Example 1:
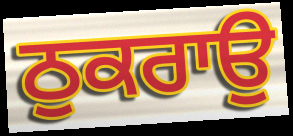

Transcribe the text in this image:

ਠੁਕਰਾਉ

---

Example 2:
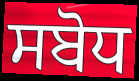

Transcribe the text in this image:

ਸਬੋਧ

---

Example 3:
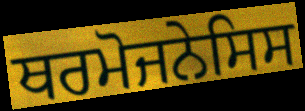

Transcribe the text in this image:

ਥਰਮੋਜਨੇਸਿਸ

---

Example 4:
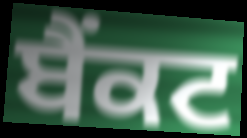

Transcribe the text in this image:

ਬੈਂਕਟ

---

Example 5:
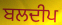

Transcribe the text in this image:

ਬਲਦੀਪ